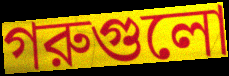
গরুগুলো